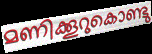
മണിക്കൂറുകൊണ്ടു